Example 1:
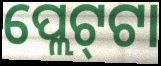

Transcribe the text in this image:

ପ୍ଲେଟ୍‍ଟା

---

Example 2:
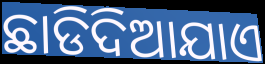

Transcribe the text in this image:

ଛାଡିଦିଆଯାଏ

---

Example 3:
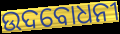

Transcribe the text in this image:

ଉଦବୋଧନୀ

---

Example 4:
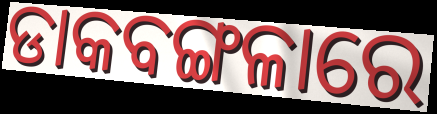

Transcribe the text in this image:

ଡାକବଙ୍ଗଳାରେ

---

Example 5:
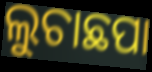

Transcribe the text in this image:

ଲୁଚାଛପା